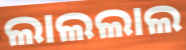
ଲାଲଲାଲ